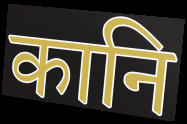
कानि